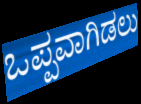
ಒಪ್ಪವಾಗಿಡಲು